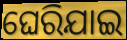
ଘେରିଯାଇ